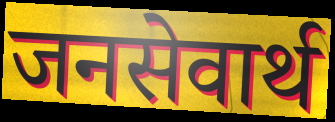
जनसेवार्थ